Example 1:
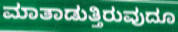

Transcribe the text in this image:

ಮಾತಾಡುತ್ತಿರುವುದೂ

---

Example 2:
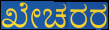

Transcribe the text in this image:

ಖೇಚರರ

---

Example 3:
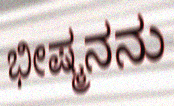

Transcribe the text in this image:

ಭೀಷ್ಮನನು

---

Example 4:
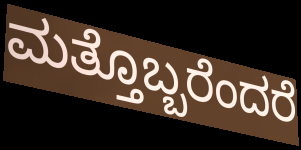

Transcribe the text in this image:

ಮತ್ತೊಬ್ಬರೆಂದರೆ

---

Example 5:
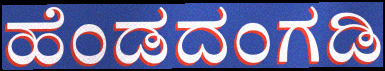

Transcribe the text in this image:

ಹೆಂಡದಂಗಡಿ